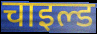
चाइल्ड